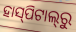
ହାସ୍‍ପିଟାଲ୍‍ରୁ